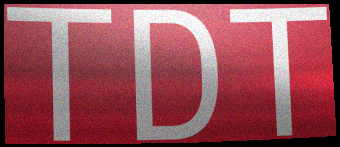
TDT